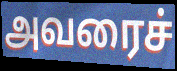
அவரைச்